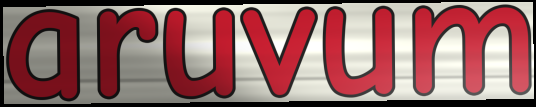
aruvum